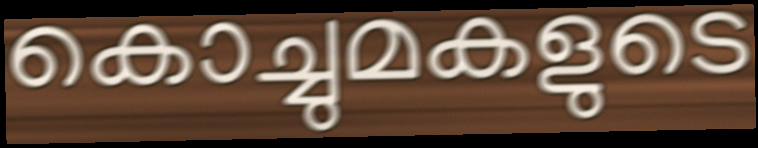
കൊച്ചുമകളുടെ